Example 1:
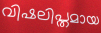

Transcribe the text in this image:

വിഷലിപ്തമായ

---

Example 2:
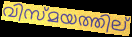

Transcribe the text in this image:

വിസ്മയത്തില്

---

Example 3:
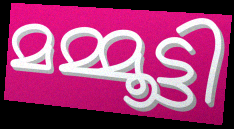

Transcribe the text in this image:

മമ്മൂട്ടി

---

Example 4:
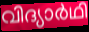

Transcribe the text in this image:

വിദ്യാർഥി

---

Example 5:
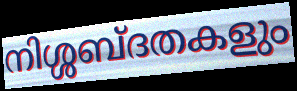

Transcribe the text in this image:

നിശ്ശബ്ദതകളും